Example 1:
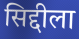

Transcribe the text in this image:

सिद्दीला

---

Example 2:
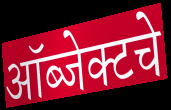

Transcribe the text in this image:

ऑब्जेक्टचे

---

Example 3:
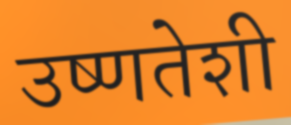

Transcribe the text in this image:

उष्णतेशी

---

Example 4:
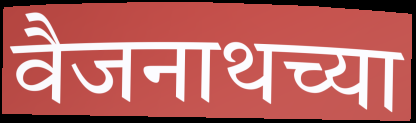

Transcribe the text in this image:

वैजनाथच्या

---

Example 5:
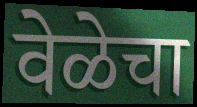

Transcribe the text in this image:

वेळेचा